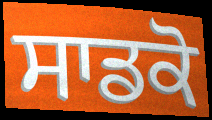
ਸਾਡਕੋ